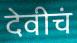
देवीचं